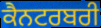
ਕੈਨਟਰਬਰੀ